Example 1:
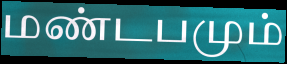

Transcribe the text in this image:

மண்டபமும்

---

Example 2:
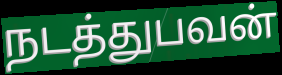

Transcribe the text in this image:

நடத்துபவன்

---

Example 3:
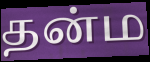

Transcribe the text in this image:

தன்ம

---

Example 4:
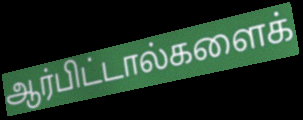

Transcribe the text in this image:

ஆர்பிட்டால்களைக்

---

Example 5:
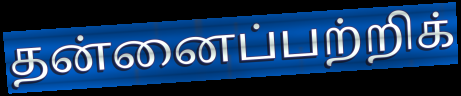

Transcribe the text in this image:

தன்னைப்பற்றிக்